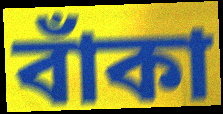
বাঁকা